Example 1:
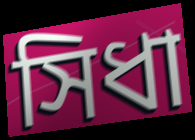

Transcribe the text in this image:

সিধা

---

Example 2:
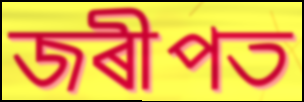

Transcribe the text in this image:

জৰীপত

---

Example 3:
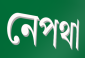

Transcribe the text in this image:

নেপথা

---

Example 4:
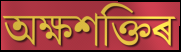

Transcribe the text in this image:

অক্ষশক্তিৰ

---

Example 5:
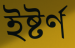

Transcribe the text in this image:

ইষ্টৰ্ণ